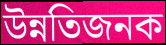
উন্নতিজনক